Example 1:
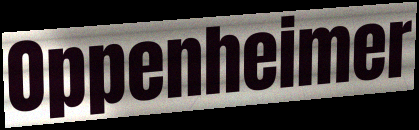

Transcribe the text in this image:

Oppenheimer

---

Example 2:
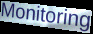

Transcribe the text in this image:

Monitoring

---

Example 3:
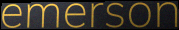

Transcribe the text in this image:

emerson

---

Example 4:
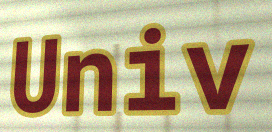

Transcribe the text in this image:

Univ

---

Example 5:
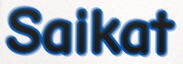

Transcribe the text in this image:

Saikat